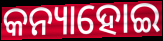
କନ୍ୟାହୋଇ